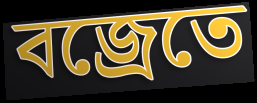
বজ্রেতে